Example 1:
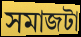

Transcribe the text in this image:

সমাজটা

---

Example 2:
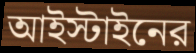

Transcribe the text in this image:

আইস্টাইনের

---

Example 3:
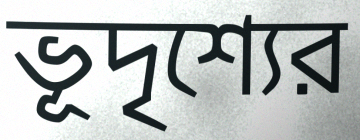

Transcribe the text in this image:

ভূদৃশ্যের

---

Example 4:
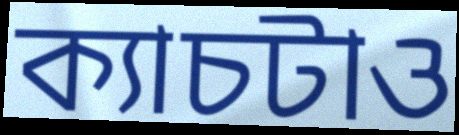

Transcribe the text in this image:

ক্যাচটাও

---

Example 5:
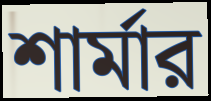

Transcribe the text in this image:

শার্মার